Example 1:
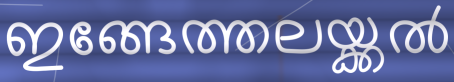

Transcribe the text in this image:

ഇങ്ങേത്തലയ്ക്കൽ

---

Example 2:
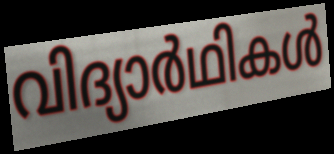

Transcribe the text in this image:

വിദ്യാർഥികൾ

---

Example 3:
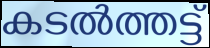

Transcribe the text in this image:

കടൽത്തട്ട്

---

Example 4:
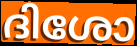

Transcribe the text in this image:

ദിശോ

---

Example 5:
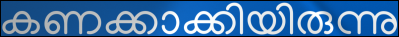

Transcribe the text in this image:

കണക്കാക്കിയിരുന്നു